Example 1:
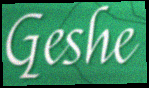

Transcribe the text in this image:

Geshe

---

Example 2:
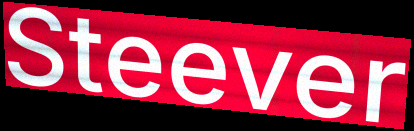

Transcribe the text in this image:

Steever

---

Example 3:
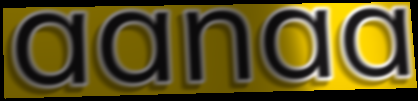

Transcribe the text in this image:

aanaa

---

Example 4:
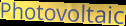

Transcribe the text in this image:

Photovoltaic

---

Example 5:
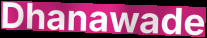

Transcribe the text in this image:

Dhanawade